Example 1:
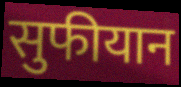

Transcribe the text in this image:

सुफीयान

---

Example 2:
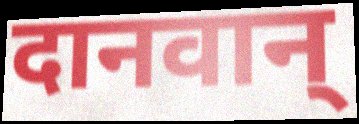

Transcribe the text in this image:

दानवान्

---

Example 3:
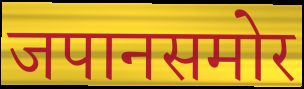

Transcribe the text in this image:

जपानसमोर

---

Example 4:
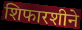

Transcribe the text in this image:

शिफारशीने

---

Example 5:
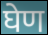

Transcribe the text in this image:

घेण